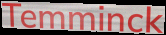
Temminck